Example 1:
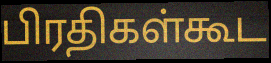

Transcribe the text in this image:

பிரதிகள்கூட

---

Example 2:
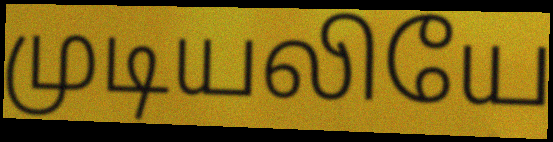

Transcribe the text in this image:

முடியலியே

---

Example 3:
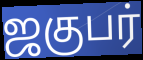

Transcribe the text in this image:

ஜகுபர்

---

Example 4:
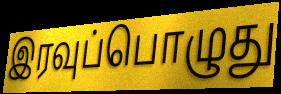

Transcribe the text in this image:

இரவுப்பொழுது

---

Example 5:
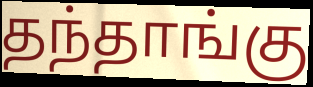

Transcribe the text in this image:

தந்தாங்கு